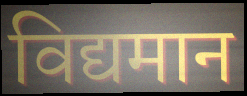
विद्यमान